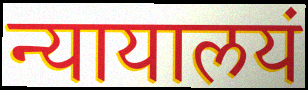
न्यायालयं